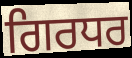
ਗਿਰਧਰ